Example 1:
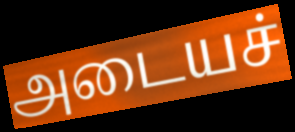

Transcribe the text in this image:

அடையச்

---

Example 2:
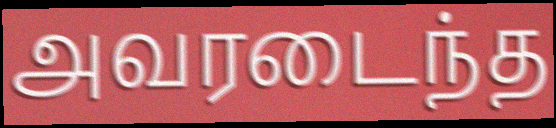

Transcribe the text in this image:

அவரடைந்த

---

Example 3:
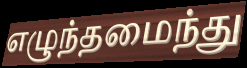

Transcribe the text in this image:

எழுந்தமைந்து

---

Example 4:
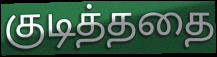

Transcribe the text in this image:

குடித்ததை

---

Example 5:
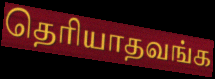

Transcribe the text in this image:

தெரியாதவங்க